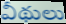
వీథులు